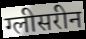
ग्लीसरीन